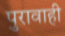
पुरावाही